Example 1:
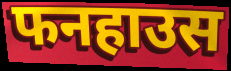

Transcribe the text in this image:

फनहाउस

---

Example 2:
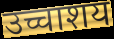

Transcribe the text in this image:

उच्चाशय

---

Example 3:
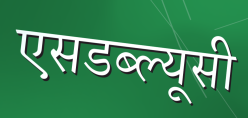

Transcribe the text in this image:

एसडब्ल्यूसी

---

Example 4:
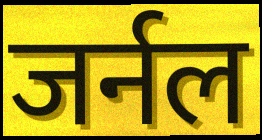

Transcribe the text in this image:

जर्नल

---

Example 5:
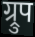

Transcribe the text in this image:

ग्र्रुप